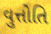
વુત્તોતિ